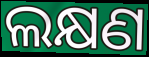
ଲକ୍ଷଣ